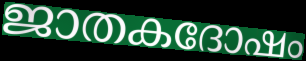
ജാതകദോഷം